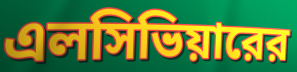
এলসিভিয়ারের